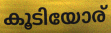
കൂടിയോര്